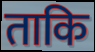
ताकि